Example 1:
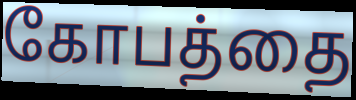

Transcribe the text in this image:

கோபத்தை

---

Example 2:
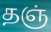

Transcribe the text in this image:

தஞ்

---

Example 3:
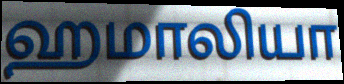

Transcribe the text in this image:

ஹமாலியா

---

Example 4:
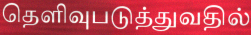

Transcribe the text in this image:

தெளிவுபடுத்துவதில்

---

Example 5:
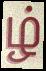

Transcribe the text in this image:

ழ்